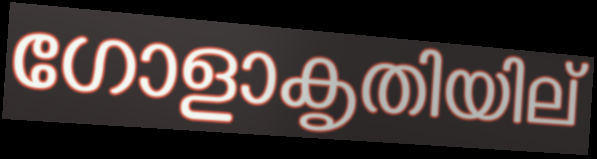
ഗോളാകൃതിയില്